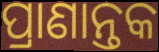
ପ୍ରାଣାନ୍ତକ